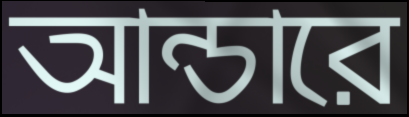
আন্ডারে